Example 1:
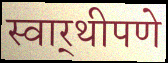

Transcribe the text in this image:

स्वार्थीपणे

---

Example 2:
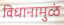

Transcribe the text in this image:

विधानामुळं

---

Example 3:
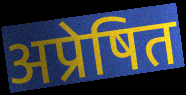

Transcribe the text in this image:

अप्रेषित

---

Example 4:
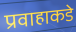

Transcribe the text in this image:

प्रवाहाकडे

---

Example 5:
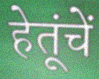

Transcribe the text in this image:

हेतूंचें